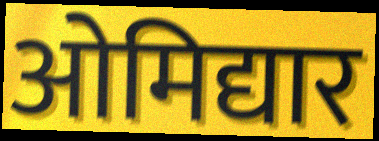
ओमिद्यार